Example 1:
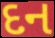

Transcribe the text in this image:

દન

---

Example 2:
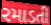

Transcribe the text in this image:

રમાડતી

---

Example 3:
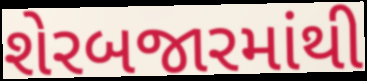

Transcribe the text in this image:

શેરબજારમાંથી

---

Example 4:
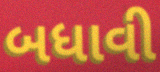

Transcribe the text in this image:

બધાવી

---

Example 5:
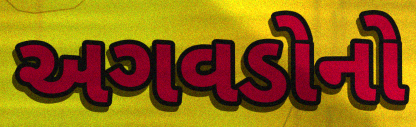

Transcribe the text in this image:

અગવડોનો